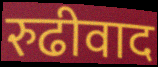
रुढीवाद